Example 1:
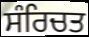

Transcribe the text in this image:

ਸੰਰਿਚਤ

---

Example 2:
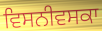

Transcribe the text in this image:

ਵਿਸਨੀਵਸਕਾ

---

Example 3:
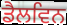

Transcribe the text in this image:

ਡੈਲਵਿਨ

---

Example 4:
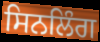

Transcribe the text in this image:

ਸਿਨਲਿੰਗ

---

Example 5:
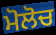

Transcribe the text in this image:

ਮੋਲੋਚ